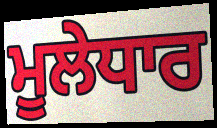
ਮੂਲੇਧਾਰ